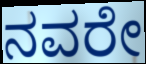
ನವರೇ